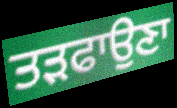
ਤੜਫਾਉਣਾ